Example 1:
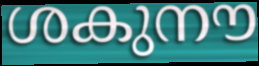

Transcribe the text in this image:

ശകുനൗ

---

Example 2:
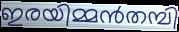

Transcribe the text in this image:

ഇരയിമ്മൻതമ്പി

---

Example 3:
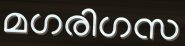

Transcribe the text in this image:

മഗരിഗസ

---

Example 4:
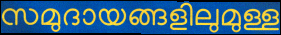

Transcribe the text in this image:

സമുദായങ്ങളിലുമുള്ള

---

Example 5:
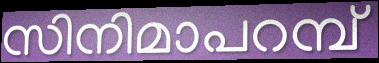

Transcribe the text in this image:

സിനിമാപറമ്പ്